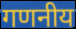
गणनीय